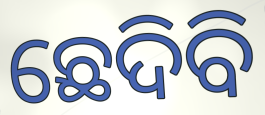
ଛେଦିବି